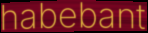
habebant